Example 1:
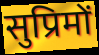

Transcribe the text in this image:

सुप्रिमों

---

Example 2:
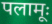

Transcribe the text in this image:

पलामूः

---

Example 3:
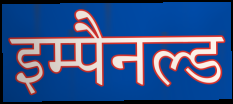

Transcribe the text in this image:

इम्पैनल्ड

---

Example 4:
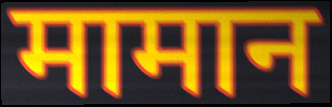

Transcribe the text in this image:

मामान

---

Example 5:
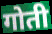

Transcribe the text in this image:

गोती